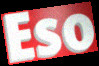
Eso